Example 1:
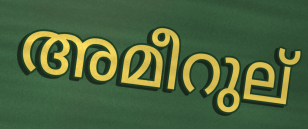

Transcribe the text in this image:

അമീറുല്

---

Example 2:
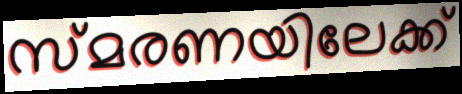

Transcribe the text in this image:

സ്മരണയിലേക്ക്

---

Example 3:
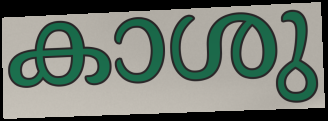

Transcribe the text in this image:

കാശു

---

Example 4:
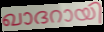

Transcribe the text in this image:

ഖാദറായി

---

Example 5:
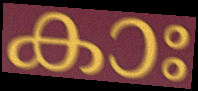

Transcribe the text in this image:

കാഃ